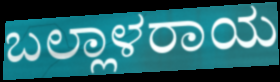
ಬಲ್ಲಾಳರಾಯ